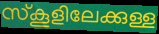
സ്കൂളിലേക്കുള്ള